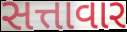
સત્તાવાર